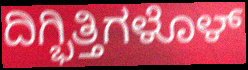
ದಿಗ್ಭಿತ್ತಿಗಳೊಳ್